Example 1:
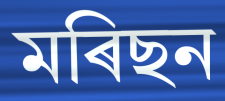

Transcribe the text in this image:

মৰিছন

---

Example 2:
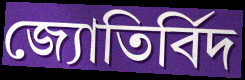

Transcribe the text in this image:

জ্যোতিৰ্বিদ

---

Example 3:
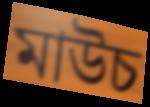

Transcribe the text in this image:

মাউচ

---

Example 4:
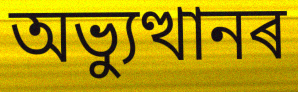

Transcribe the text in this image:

অভ্যুত্থানৰ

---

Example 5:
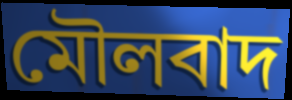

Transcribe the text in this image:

মৌলবাদ